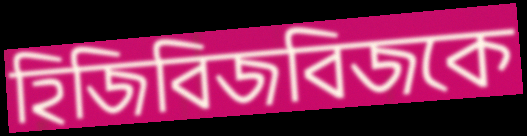
হিজিবিজবিজকে